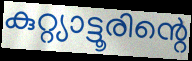
കുറ്റ്യാട്ടൂരിന്റെ